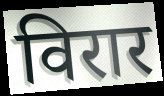
विरार